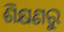
ଶିକ୍ଷଣରୁ